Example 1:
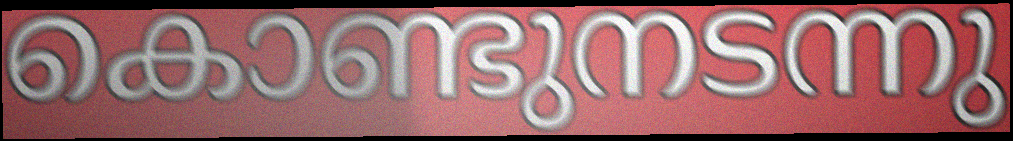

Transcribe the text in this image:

കൊണ്ടുനടന്നു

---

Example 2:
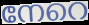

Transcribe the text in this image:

നേറെ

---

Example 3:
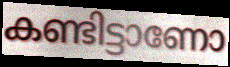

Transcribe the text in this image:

കണ്ടിട്ടാണോ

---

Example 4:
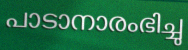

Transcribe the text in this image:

പാടാനാരംഭിച്ചു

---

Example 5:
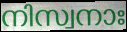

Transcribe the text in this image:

നിസ്വനാഃ